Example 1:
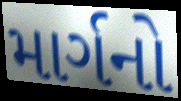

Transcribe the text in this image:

માર્ગનો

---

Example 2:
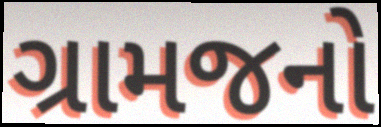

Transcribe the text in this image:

ગ્રામજનો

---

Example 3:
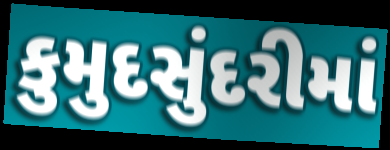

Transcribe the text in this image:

કુમુદસુંદરીમાં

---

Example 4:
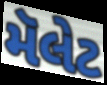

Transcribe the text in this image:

મૅલેટ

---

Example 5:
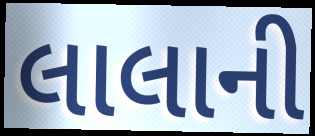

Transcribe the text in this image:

લાલાની